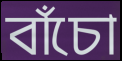
বাঁচো